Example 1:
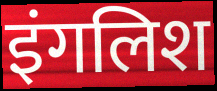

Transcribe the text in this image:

इंगलिश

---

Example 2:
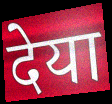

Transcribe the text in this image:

देया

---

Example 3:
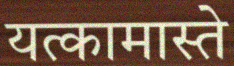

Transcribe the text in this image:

यत्कामास्ते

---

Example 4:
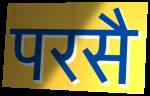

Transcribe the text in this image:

परसै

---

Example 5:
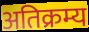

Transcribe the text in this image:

अतिक्रम्य